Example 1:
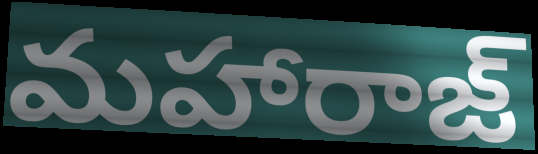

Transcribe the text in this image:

మహారాజ్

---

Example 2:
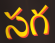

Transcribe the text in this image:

సగ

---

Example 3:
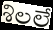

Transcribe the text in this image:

శిలలే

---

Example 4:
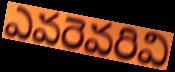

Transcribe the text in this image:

ఎవరెవరివి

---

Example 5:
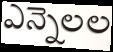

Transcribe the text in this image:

ఎన్నెలల